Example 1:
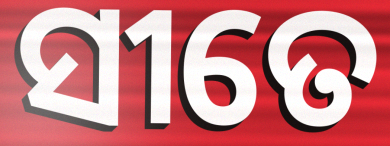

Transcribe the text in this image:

ସୀତେ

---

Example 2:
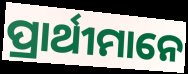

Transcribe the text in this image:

ପ୍ରାର୍ଥୀମାନେ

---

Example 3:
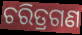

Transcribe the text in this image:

ଚରିତ୍ରଗଣ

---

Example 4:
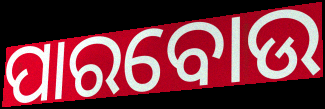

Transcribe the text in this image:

ପାରବୋଉ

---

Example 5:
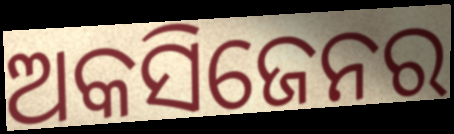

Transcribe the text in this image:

ଅକସିଜେନର